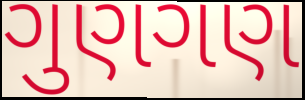
ગુણગણ